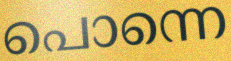
പൊന്നെ